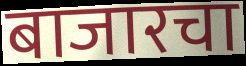
बाजारचा